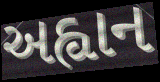
અહ્વાન